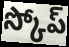
స్కోప్